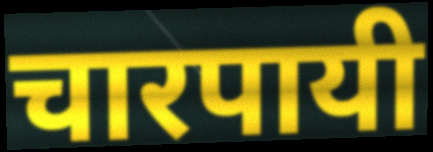
चारपायी